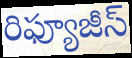
రిఫ్యూజీస్